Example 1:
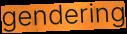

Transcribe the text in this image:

gendering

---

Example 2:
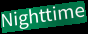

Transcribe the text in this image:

Nighttime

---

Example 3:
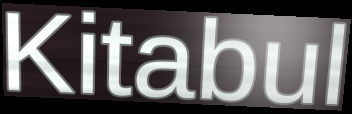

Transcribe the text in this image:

Kitabul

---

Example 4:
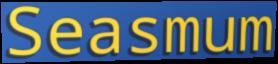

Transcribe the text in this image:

Seasmum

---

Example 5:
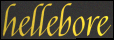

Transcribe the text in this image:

hellebore